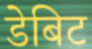
डेबिट